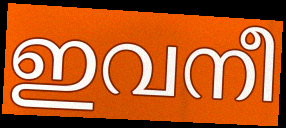
ഇവനീ